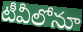
టీవీలోనూ